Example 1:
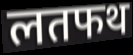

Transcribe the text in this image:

लतफथ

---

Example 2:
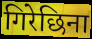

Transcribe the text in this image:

गिरेछिना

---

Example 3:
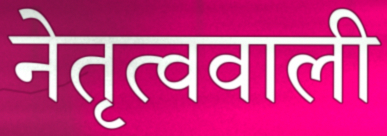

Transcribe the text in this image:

नेतृत्ववाली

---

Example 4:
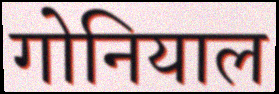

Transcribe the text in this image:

गोनियाल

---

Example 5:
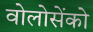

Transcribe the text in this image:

वोलोसेंको